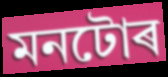
মনটোৰ